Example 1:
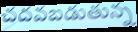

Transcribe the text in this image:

చదవబడుతున్న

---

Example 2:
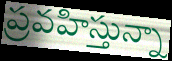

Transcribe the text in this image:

ప్రవహిస్తున్నా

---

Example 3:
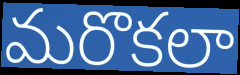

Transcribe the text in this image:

మరొకలా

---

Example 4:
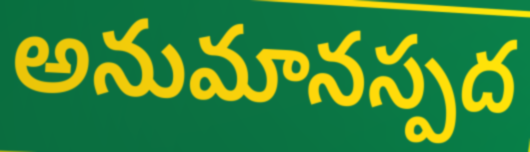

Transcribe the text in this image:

అనుమానస్పద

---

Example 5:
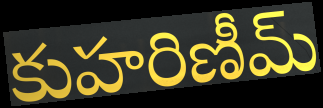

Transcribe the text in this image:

కుహరిణీమ్